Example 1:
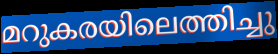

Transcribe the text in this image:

മറുകരയിലെത്തിച്ചു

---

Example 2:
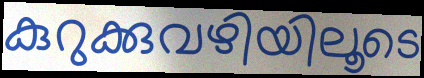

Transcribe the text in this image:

കുറുക്കുവഴിയിലൂടെ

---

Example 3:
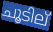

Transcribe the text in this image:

ചൂടില്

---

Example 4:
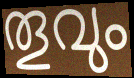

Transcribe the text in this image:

തൂവും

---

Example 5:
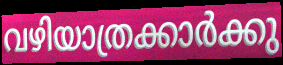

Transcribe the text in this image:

വഴിയാത്രക്കാർക്കു